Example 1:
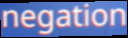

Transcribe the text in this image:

negation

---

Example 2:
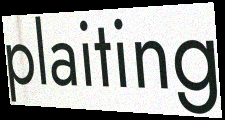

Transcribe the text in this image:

plaiting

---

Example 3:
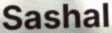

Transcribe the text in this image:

Sashal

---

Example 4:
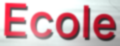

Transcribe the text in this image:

Ecole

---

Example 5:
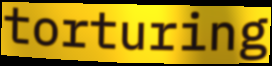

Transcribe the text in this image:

torturing